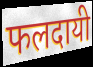
फलदायी